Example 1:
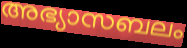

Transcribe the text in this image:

അഭ്യാസബലം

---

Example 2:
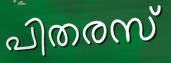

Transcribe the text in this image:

പിതരസ്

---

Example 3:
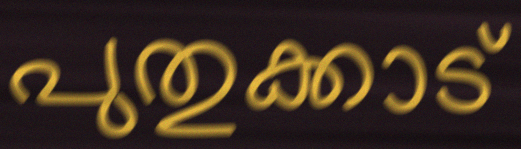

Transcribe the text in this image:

പുതുക്കാട്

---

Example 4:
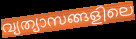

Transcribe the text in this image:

വ്യത്യാസങ്ങളിലെ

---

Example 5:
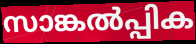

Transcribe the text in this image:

സാങ്കൽപ്പിക